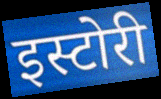
इस्टोरी